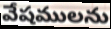
వేషములను